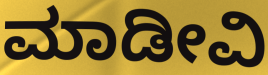
ಮಾಡೀವಿ